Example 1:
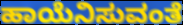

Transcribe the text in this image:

ಹಾಯೆನಿಸುವಂತೆ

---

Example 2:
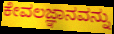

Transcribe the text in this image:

ಕೇವಲಜ್ಞಾನವನ್ನು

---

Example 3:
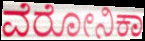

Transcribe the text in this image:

ವೆರೋನಿಕಾ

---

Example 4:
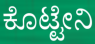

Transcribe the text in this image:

ಕೊಟ್ಟೇನಿ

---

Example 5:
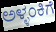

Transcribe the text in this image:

ಅಳ್ಳಂಕಿಗೆ